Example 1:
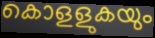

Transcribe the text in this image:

കൊളളുകയും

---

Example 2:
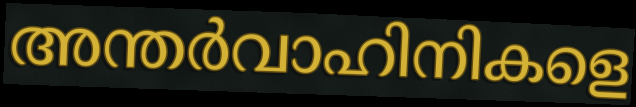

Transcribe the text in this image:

അന്തർവാഹിനികളെ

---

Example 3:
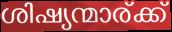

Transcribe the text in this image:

ശിഷ്യന്മാര്ക്ക്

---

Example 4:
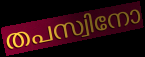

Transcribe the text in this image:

തപസ്വിനോ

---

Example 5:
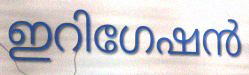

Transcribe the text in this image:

ഇറിഗേഷൻ